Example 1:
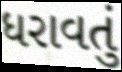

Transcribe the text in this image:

ધરાવતું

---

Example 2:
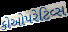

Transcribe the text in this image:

કોઓપરેટિવ્સ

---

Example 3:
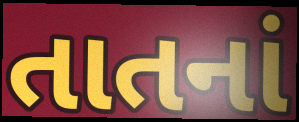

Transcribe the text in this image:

તાતનાં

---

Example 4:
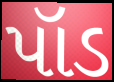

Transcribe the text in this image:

પૉડ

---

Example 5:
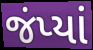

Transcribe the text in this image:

જંપ્યાં